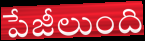
పేజీలుంది